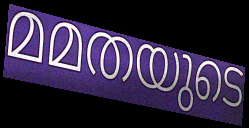
മമതയുടെ